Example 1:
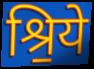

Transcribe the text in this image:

श्रि॒ये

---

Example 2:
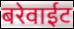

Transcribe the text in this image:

बरेवाईट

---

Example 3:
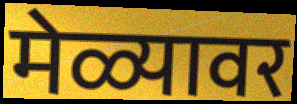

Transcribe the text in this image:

मेळ्यावर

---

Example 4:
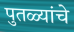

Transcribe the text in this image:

पुतळ्यांचे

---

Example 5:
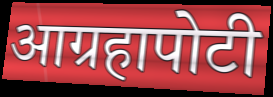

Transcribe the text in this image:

आग्रहापोटी